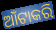
ଆଁଟାକରି